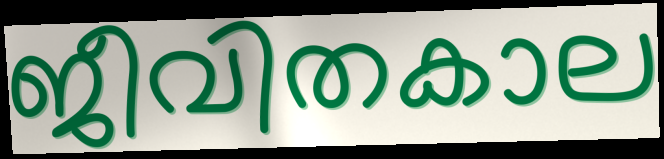
ജീവിതകാല